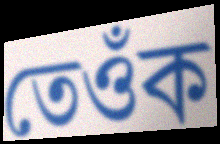
তেওঁক